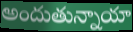
అందుతున్నాయా